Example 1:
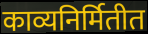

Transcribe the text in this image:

काव्यनिर्मितीत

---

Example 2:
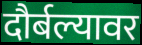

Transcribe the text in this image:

दौर्बल्यावर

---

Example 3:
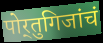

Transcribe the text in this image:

पोर्तुगिजांचं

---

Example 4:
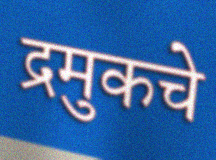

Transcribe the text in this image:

द्रमुकचे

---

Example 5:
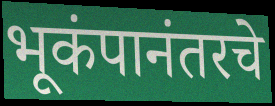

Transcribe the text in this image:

भूकंपानंतरचे